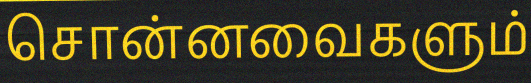
சொன்னவைகளும்